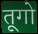
तूगो